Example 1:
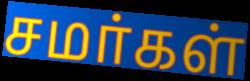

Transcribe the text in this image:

சமர்கள்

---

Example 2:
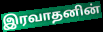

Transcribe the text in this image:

இரவாதனின்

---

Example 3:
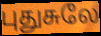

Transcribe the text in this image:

புதுசுலே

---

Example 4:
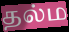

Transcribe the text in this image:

தல்ம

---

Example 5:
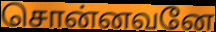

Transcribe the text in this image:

சொன்னவனே